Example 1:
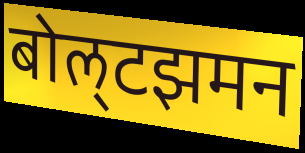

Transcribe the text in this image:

बोल्टझमन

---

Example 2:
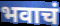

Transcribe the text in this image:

भवाचं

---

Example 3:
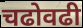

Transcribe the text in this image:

चढोवढी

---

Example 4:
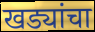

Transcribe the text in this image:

खड्यांचा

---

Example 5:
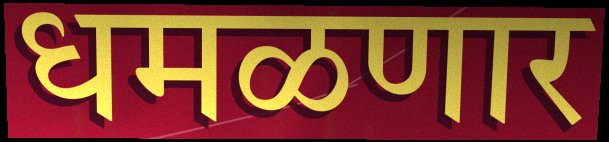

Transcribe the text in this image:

धमळणार